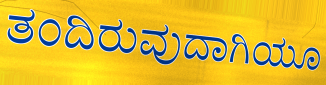
ತಂದಿರುವುದಾಗಿಯೂ